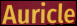
Auricle